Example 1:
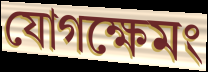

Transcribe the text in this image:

যোগক্ষেমং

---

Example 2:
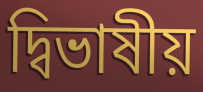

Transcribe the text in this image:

দ্বিভাষীয়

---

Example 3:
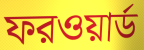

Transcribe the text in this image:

ফরওয়ার্ড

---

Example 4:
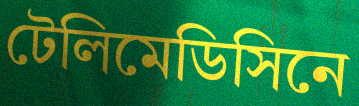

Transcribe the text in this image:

টেলিমেডিসিনে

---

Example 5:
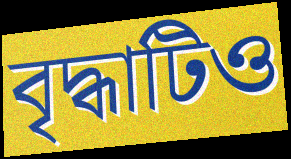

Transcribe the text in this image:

বৃদ্ধাটিও